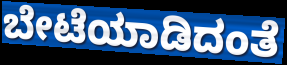
ಬೇಟೆಯಾಡಿದಂತೆ